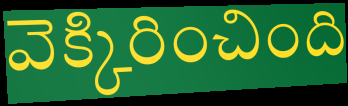
వెక్కిరించింది